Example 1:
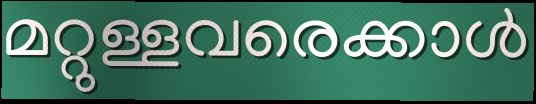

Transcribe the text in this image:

മറ്റുള്ളവരെക്കാൾ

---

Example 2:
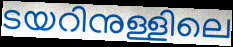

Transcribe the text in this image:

ടയറിനുള്ളിലെ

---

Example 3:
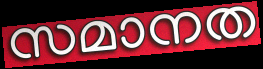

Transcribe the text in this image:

സമാനത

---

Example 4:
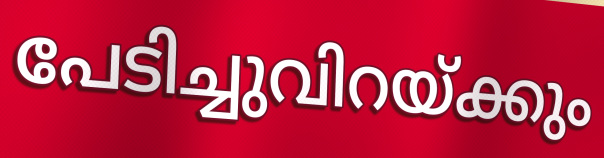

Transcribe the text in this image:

പേടിച്ചുവിറയ്ക്കും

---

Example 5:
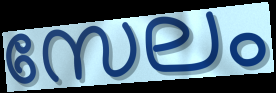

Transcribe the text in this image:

സേലം